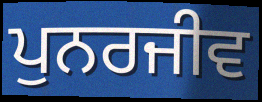
ਪੁਨਰਜੀਵ